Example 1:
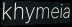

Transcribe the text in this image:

khymeia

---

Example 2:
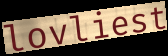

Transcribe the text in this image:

lovliest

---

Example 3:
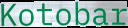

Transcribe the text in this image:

Kotobar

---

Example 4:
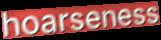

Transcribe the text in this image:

hoarseness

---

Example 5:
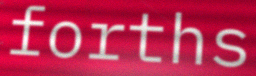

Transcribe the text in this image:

forths